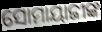
ସୋମାୟାଜୀଙ୍କ